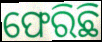
ଫେରିଛି